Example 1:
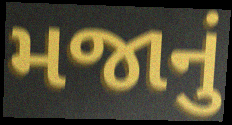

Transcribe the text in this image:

મજાનું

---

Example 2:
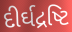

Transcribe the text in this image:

દીર્ઘદ્રષ્ટિ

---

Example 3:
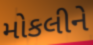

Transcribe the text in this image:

મોકલીને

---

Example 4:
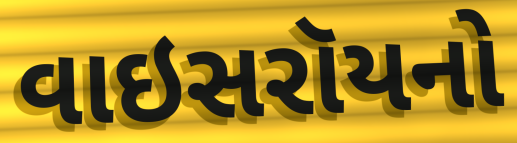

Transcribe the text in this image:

વાઇસરૉયનો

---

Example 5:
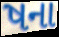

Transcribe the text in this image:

ષના